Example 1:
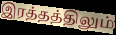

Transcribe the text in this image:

இரத்தத்திலும்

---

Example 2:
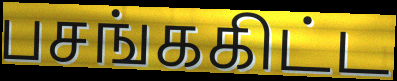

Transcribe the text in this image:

பசங்ககிட்ட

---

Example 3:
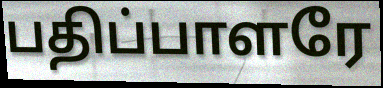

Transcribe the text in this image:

பதிப்பாளரே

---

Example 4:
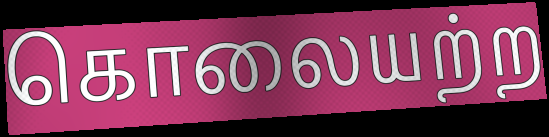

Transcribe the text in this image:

கொலையற்ற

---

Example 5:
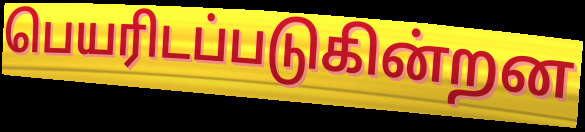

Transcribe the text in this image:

பெயரிடப்படுகின்றன